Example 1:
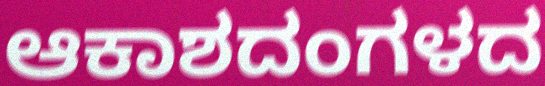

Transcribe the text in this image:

ಆಕಾಶದಂಗಳದ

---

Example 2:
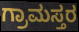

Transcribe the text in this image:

ಗ್ರಾಮಸ್ತರ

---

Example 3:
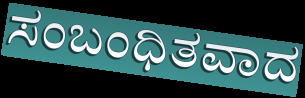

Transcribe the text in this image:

ಸಂಬಂಧಿತವಾದ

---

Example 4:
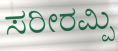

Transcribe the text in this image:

ಸರೀರಮ್ಪಿ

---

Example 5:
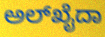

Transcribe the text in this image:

ಅಲ್‌ಖೈದಾ